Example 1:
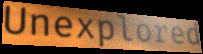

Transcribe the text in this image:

Unexplored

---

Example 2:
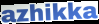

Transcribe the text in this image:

azhikka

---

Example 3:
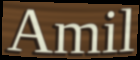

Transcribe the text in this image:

Amil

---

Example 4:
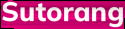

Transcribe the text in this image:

Sutorang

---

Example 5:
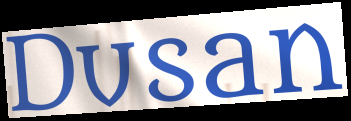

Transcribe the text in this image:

Dusan